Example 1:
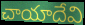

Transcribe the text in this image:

చాయాదేవి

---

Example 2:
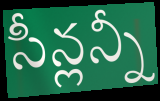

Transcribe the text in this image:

సీన్లన్నీ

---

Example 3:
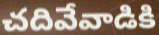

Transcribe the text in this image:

చదివేవాడికి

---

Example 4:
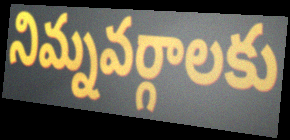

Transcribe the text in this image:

నిమ్నవర్గాలకు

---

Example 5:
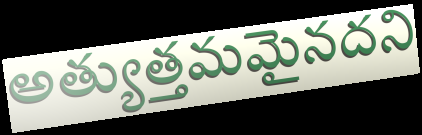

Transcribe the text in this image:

అత్యుత్తమమైనదని